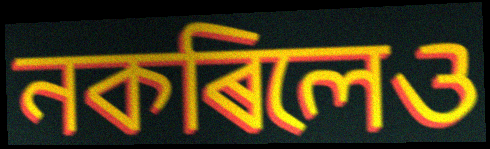
নকৰিলেও